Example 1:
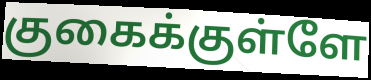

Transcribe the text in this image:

குகைக்குள்ளே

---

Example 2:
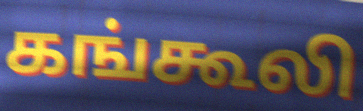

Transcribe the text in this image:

கங்கூலி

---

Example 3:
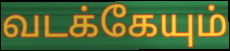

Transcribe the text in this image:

வடக்கேயும்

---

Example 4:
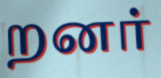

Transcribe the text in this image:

றனர்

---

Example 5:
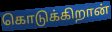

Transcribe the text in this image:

கொடுக்கிறான்